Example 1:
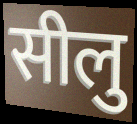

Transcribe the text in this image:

सीलु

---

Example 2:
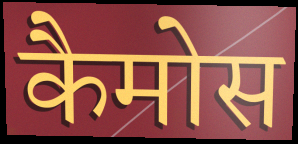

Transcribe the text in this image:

कैमोस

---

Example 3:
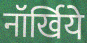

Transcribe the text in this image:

नॉर्खिये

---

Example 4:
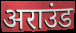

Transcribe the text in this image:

अराउंड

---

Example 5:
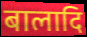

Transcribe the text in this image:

बालादि